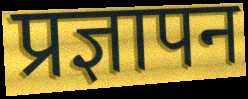
प्रज्ञापन